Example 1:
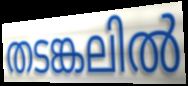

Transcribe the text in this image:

തടങ്കലിൽ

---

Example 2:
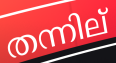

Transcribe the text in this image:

തന്നില്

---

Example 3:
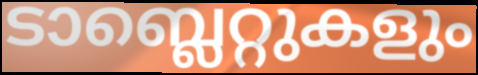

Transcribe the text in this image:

ടാബ്ലെറ്റുകളും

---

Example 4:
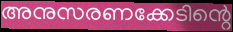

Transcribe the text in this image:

അനുസരണക്കേടിന്റെ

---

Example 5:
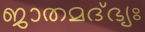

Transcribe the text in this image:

ജാതമദ്ഭ്യഃ